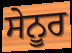
ਸੇਨੂਰ